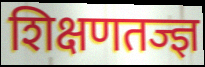
शिक्षणतज्ज्ञ